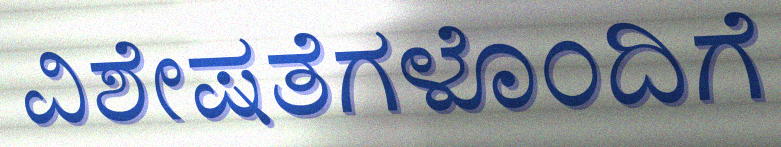
ವಿಶೇಷತೆಗಳೊಂದಿಗೆ